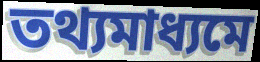
তথ্যমাধ্যমে